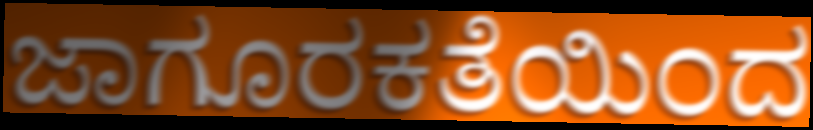
ಜಾಗೂರಕತೆಯಿಂದ